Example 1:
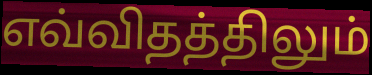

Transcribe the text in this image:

எவ்விதத்திலும்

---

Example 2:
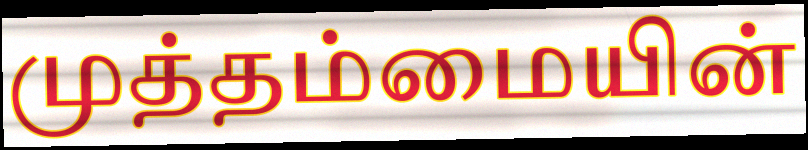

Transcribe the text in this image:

முத்தம்மையின்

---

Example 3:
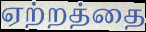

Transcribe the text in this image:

ஏற்றத்தை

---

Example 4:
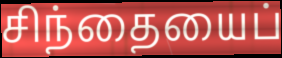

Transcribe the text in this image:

சிந்தையைப்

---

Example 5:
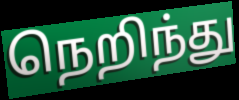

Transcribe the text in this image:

நெறிந்து